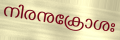
നിരനുക്രോശഃ